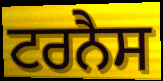
ਟਰਨੈਸ